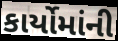
કાર્યોમાંની